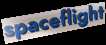
spaceflight